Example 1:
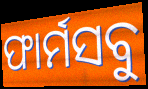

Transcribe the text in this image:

ଫାର୍ମସବୁ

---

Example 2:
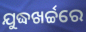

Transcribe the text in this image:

ଯୁଦ୍ଧଖର୍ଚ୍ଚରେ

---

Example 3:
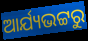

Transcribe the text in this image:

ଆର୍ଯ୍ୟଭଟ୍ଟରୁ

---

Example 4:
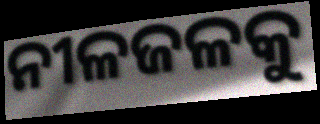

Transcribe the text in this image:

ନୀଳଜଳକୁ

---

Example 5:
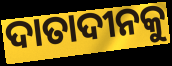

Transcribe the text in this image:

ଦାତାଦୀନକୁ